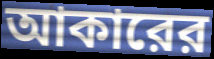
আকারের